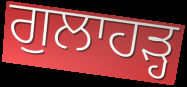
ਗੁਲਾਹੜ੍ਹ